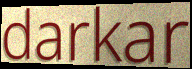
darkar